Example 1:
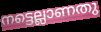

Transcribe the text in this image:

നട്ടെല്ലാണതു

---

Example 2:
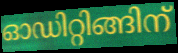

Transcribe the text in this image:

ഓഡിറ്റിങ്ങിന്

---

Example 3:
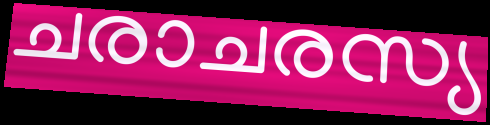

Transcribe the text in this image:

ചരാചരസ്യ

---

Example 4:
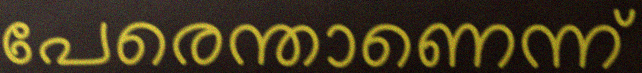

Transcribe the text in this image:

പേരെന്താണെന്ന്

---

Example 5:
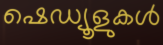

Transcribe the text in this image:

ഷെഡ്യൂളുകൾ